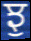
ਝੁ